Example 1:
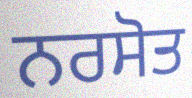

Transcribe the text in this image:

ਨਰਸੋਤ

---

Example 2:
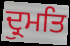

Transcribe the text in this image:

ਦ੍ਰੁਮਤਿ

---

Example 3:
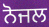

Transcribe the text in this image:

ਨੋਜਲ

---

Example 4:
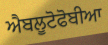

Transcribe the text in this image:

ਐਬਲੂਟੋਫੋਬੀਆ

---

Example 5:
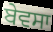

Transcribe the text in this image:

ਬੇਵਸਾ